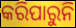
କରିପାରୁନି